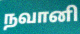
நவானி